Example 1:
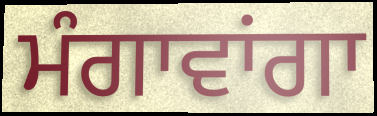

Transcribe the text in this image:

ਮੰਗਾਵਾਂਗਾ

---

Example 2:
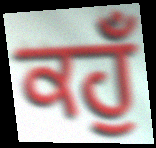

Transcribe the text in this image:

ਕਹੁਁ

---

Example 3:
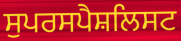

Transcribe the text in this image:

ਸੁਪਰਸਪੈਸ਼ਲਿਸਟ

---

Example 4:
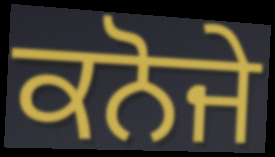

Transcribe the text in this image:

ਕਨੋਜੇ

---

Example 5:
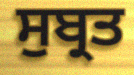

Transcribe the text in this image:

ਸੁਬ੍ਰਤ